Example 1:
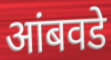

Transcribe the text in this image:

आंबवडे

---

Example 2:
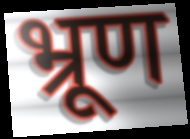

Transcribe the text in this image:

भ्रूण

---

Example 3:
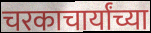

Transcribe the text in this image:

चरकाचार्यांच्या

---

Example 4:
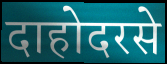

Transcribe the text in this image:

दाहोदरसे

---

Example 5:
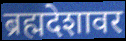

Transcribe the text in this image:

ब्रह्मदेशावर